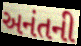
અનંતની